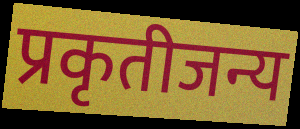
प्रकृतीजन्य